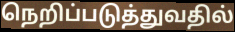
நெறிப்படுத்துவதில்